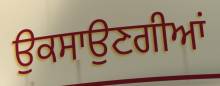
ਉਕਸਾਉਣਗੀਆਂ